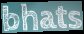
bhats